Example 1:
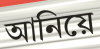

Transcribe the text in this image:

আনিয়ে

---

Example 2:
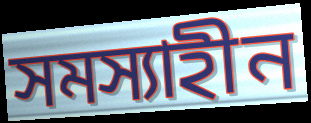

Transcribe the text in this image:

সমস্যাহীন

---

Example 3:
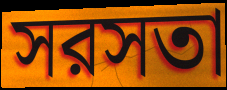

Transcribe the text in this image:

সরসতা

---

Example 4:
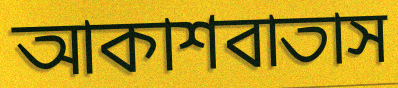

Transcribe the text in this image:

আকাশবাতাস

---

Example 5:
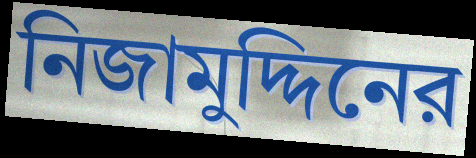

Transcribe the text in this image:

নিজামুদ্দিনের